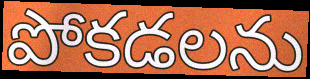
పోకడలను